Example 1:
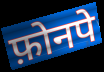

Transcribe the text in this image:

फ़ोनपे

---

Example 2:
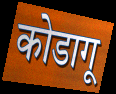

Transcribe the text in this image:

कोडागू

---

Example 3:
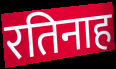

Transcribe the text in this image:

रतिनाह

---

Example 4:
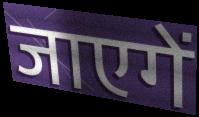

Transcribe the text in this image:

जाएगें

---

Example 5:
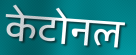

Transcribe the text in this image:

केटोनल